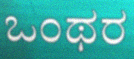
ಒಂಥರ